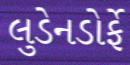
લુડેનડોર્ફે